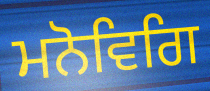
ਮਨੋਵਿਗਿ